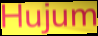
Hujum